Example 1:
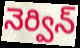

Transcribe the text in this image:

నెర్విన్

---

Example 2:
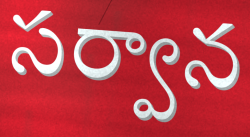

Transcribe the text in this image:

సర్వాన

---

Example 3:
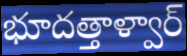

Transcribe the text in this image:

భూదత్తాళ్వార్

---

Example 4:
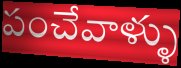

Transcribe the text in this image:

పంచేవాళ్ళు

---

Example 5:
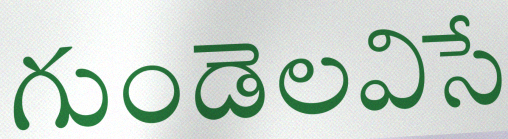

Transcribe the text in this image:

గుండెలవిసే